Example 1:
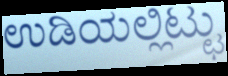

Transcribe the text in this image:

ಉಡಿಯಲ್ಲಿಟ್ಟು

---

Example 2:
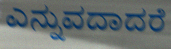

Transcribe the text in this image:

ಎನ್ನುವದಾದರೆ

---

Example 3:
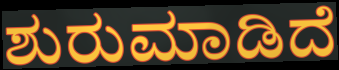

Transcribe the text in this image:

ಶುರುಮಾಡಿದೆ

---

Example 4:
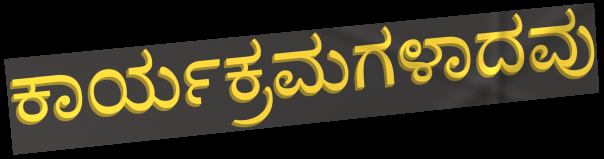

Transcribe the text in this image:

ಕಾರ್ಯಕ್ರಮಗಳಾದವು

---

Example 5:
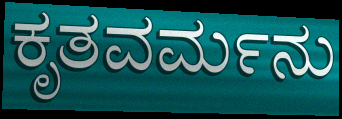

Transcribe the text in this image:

ಕೃತವರ್ಮನು